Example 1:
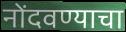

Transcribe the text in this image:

नोंदवण्याचा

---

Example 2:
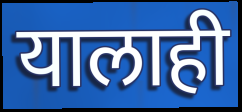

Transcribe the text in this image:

यालाही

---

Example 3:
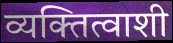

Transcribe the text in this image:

व्यक्तित्वाशी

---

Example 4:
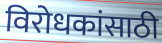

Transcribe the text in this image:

विरोधकांसाठी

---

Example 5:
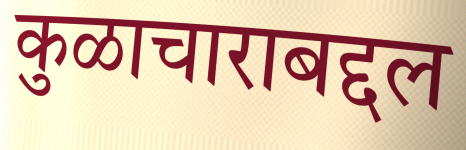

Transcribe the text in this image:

कुळाचाराबद्दल